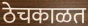
ठेचकाळत